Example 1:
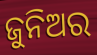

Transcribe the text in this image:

ଜୁନିଅର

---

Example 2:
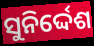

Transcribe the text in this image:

ସୁନିର୍ଦ୍ଦେଶ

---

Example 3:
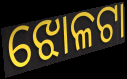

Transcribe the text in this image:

ଝୋଳଟା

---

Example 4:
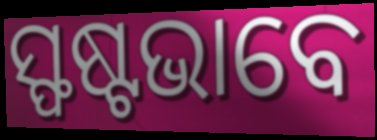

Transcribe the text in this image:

ସ୍ଫଷ୍ଟଭାବେ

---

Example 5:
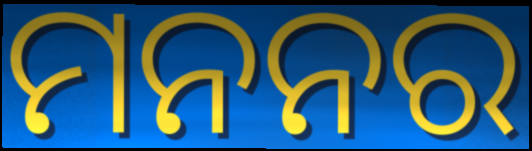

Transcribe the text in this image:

ମନନର